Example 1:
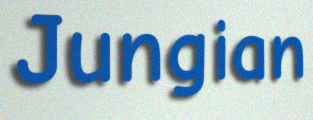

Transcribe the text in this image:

Jungian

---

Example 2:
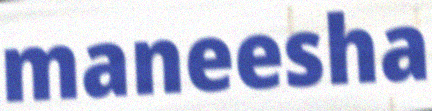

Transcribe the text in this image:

maneesha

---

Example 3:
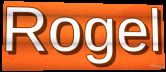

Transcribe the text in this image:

Rogel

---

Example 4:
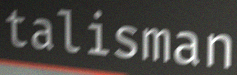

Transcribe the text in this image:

talisman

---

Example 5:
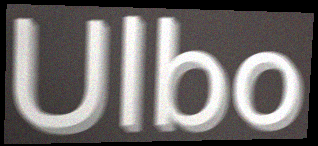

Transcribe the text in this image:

Ulbo